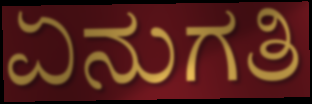
ಏನುಗತಿ